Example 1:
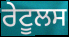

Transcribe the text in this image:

ਰੇਟੂਲਸ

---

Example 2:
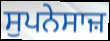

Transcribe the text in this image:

ਸੁਪਨੇਸਾਜ਼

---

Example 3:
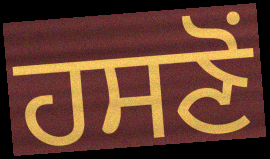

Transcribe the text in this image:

ਹਸਣੋਂ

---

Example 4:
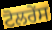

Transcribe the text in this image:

ਟੋਲਰੇਂਸ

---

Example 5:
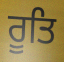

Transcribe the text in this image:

ਰੂਤਿ